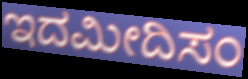
ಇದಮೀದಿಸಂ